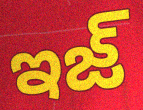
ఇజ్